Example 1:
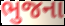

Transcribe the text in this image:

ભુજના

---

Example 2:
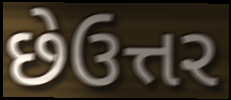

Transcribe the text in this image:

છેઉત્તર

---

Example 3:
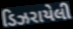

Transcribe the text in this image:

ડિઝરાયેલી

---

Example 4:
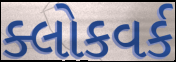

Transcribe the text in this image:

ક્લોકવર્ક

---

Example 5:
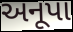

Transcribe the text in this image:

અનૂપા